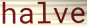
halve